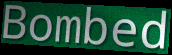
Bombed